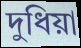
দুধিয়া